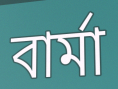
বাৰ্মা